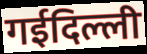
गईदिल्ली